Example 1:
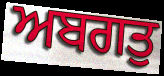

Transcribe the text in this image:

ਅਬਗਤੁ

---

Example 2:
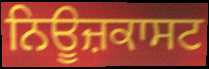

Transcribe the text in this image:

ਨਿਊਜ਼ਕਾਸਟ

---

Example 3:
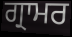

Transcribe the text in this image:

ਗ੍ਰਾਮਰ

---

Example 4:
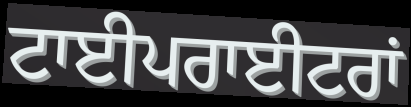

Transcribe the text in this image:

ਟਾਈਪਰਾਈਟਰਾਂ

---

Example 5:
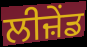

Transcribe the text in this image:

ਲੀਜ਼ੇਂਡ